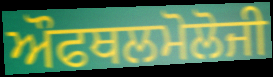
ਔਫਥਲਮੋਲੋਜੀ